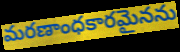
మరణాంధకారమైనను